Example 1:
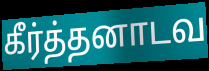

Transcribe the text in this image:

கீர்த்தனாடவ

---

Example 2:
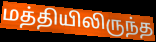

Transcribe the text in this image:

மத்தியிலிருந்த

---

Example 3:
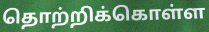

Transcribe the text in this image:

தொற்றிக்கொள்ள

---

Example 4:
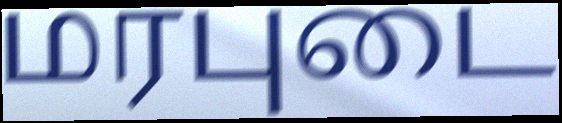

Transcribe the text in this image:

மரபுடை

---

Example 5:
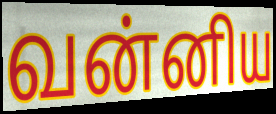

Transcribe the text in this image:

வன்னிய